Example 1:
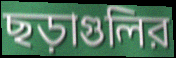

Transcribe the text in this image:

ছড়াগুলির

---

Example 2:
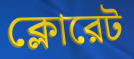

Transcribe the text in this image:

ক্লোরেট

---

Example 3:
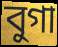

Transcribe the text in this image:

বুগা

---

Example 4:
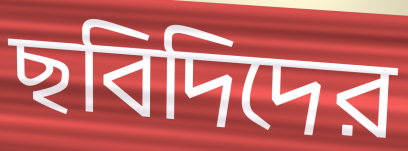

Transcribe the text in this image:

ছবিদিদের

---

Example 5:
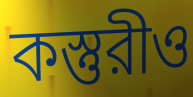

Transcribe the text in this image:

কস্তুরীও